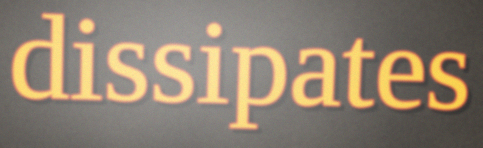
dissipates